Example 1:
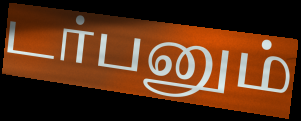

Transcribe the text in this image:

டர்பனும்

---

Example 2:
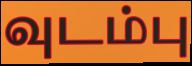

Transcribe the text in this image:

வுடம்பு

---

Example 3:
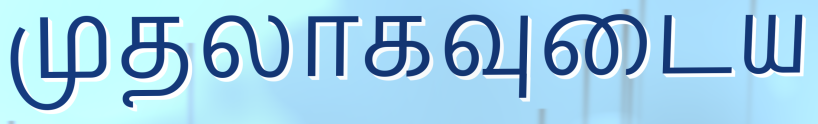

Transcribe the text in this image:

முதலாகவுடைய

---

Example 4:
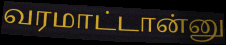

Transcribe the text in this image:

வரமாட்டான்னு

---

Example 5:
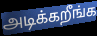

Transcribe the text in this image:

அடிக்கறீங்க